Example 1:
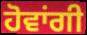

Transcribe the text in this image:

ਹੋਵਾਂਗੀ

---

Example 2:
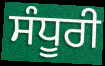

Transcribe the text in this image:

ਸੰਧੂਰੀ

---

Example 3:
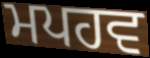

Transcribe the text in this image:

ਮਪਹਵ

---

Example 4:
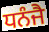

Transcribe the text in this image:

ਧਨੰਜੈ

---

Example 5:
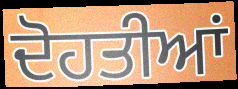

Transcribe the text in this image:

ਦੋਹਤੀਆਂ